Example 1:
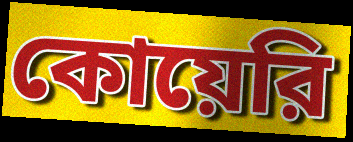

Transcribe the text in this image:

কোয়েরি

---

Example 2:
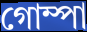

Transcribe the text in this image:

গোম্পা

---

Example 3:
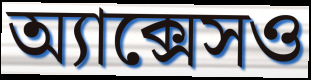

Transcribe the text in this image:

অ্যাক্সেসও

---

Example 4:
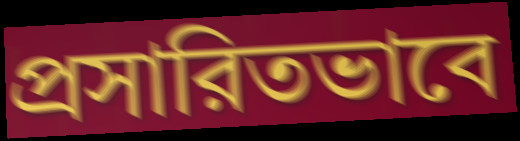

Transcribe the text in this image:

প্রসারিতভাবে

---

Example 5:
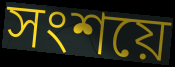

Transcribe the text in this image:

সংশয়ে